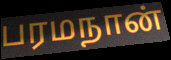
பரமநான்